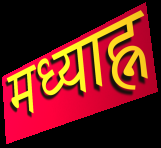
मध्याह्न